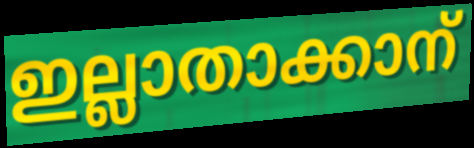
ഇല്ലാതാക്കാന്